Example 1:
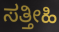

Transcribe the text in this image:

ಸತ್ತೀಹಿ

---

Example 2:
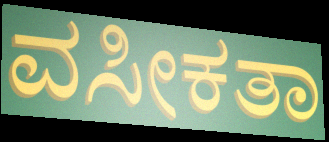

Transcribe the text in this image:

ವಸೀಕತಾ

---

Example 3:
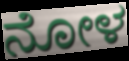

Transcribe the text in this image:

ನೋಳ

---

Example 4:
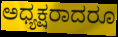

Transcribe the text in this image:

ಅಧ್ಯಕ್ಷರಾದರೂ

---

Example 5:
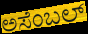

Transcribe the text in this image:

ಅಸೆಂಬಲ್